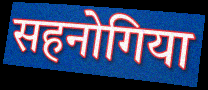
सहनोगिया